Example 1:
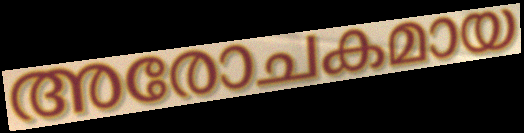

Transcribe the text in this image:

അരോചകമായ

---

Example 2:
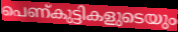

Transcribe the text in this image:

പെണ്കുട്ടികളുടെയും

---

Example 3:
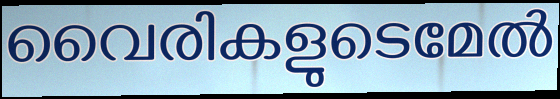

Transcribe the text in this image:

വൈരികളുടെമേൽ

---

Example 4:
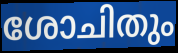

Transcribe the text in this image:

ശോചിതും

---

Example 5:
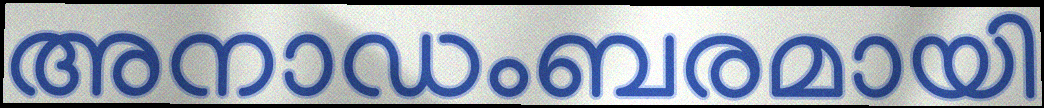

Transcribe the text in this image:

അനാഡംബരമായി